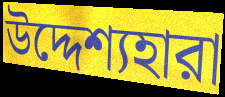
উদ্দেশ্যহারা